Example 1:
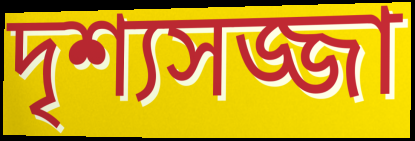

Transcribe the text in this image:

দৃশ্যসজ্জা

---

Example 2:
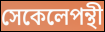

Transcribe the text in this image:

সেকেলেপন্থী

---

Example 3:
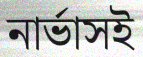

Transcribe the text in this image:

নার্ভাসই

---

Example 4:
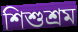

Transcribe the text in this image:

শিশুশ্রম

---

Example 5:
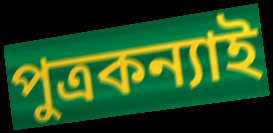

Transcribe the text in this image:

পুত্রকন্যাই